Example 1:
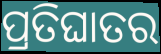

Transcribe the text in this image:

ପ୍ରତିଘାତର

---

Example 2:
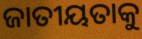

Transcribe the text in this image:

ଜାତୀୟତାକୁ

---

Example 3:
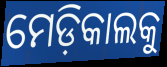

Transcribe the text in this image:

ମେଡ଼ିକାଲକୁ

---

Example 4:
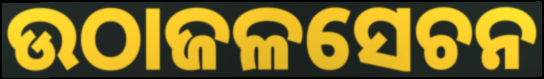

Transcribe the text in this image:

ଉଠାଜଳସେଚନ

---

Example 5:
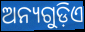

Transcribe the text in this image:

ଅନ୍ୟଗୁଡ଼ିଏ